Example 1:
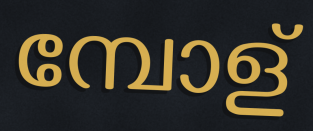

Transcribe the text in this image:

മ്പോള്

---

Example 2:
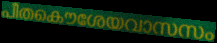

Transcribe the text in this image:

പീതകൌശേയവാസസം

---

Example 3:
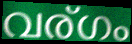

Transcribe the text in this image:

വര്ഗം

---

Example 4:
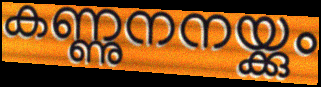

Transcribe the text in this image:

കണ്ണുനനയ്ക്കും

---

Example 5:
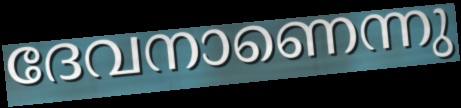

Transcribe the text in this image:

ദേവനാണെന്നു